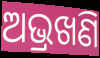
ଅଭ୍ରଖଣି